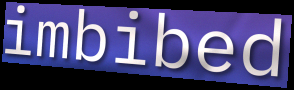
imbibed